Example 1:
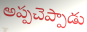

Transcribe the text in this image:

అప్పచెప్పాడు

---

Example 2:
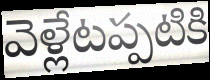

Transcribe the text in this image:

వెళ్లేటప్పటికి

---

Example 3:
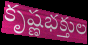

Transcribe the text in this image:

కృష్ణభక్తుల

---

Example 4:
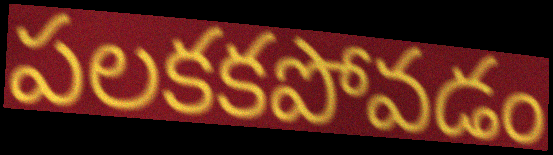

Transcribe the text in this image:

పలకకపోవడం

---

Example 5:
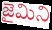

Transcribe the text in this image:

జైమిని